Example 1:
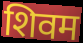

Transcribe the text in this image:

शिवम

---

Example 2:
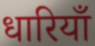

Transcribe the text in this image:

धारियाँ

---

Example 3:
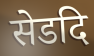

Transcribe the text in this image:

सेडदि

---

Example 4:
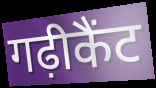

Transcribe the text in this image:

गढ़ीकैंट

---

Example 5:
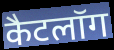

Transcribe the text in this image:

कैटलॉग